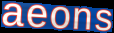
aeons